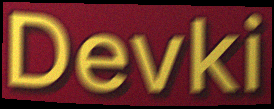
Devki